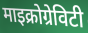
माइक्रोग्रेविटी